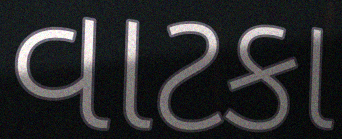
વાટકા